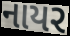
નાયર